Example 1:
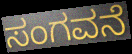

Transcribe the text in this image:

ಸಂಗವನೆ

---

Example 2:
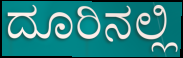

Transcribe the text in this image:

ದೂರಿನಲ್ಲಿ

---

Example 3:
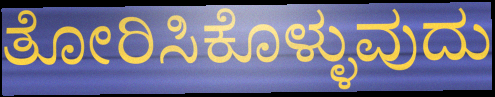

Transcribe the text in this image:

ತೋರಿಸಿಕೊಳ್ಳುವುದು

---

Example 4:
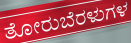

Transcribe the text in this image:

ತೋರುಬೆರಳುಗಳ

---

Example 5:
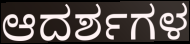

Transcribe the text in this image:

ಆದರ್ಶಗಳ